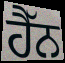
ਹੈੱਨ